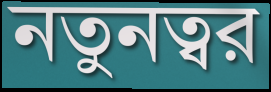
নতুনত্বর